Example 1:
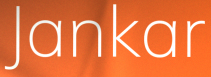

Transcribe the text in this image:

Jankar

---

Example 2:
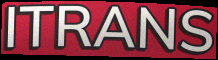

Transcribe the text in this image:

ITRANS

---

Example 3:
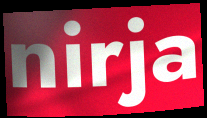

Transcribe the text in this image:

nirja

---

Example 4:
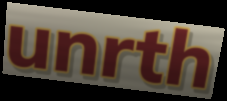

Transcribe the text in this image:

unrth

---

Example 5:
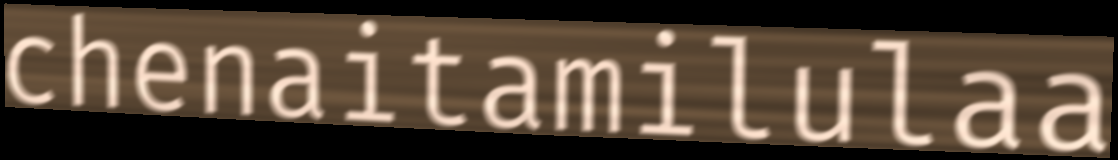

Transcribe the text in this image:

chenaitamilulaa